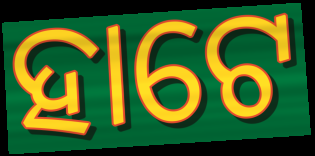
ହାଟେ